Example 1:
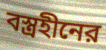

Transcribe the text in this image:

বস্ত্রহীনের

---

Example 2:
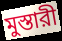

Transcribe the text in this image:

মুস্তারী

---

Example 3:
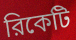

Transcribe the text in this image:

রিকেটি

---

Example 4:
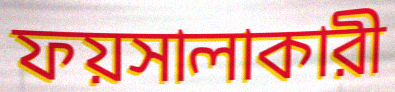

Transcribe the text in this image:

ফয়সালাকারী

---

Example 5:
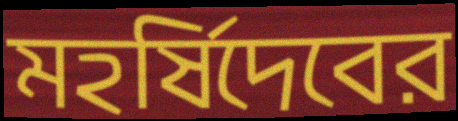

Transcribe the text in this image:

মহর্ষিদেবের